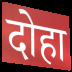
दोहा